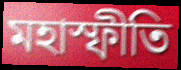
মহাস্ফীতি